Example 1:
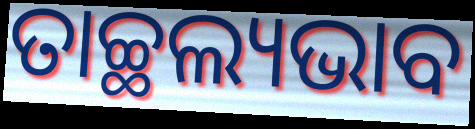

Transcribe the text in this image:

ତାଚ୍ଛଲ୍ୟଭାବ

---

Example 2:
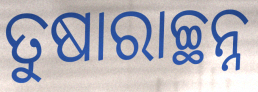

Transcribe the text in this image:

ତୁଷାରାଚ୍ଛନ୍ନ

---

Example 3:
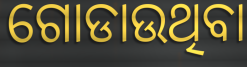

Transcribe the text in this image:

ଗୋଡାଉଥିବା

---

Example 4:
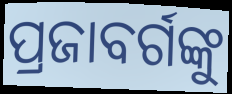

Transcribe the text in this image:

ପ୍ରଜାବର୍ଗଙ୍କୁ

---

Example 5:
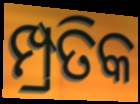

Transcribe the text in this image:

ମ୍ପ୍ରତିକ